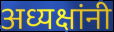
अध्यक्षांनी